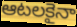
ఆటలకైనా